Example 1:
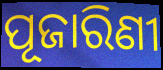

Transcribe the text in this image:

ପୂଜାରିଣୀ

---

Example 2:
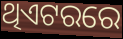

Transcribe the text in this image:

ଥିଏଟରରେ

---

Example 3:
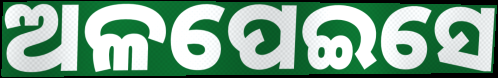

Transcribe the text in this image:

ଅଳପେଇସେ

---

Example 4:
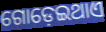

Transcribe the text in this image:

ଗୋଡ଼େଇଥାଏ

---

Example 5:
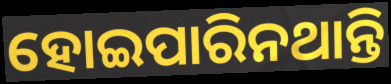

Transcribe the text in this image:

ହୋଇପାରିନଥାନ୍ତି